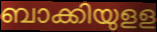
ബാക്കിയുളള